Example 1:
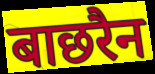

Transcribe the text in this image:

बाछरैन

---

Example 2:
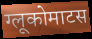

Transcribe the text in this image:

ग्लूकोमाटस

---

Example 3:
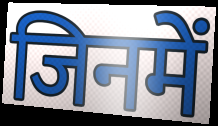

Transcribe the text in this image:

जिनमें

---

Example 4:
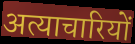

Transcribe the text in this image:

अत्याचारियों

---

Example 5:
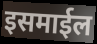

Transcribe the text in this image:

इसमाईल